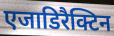
एजाडिरैक्टिन